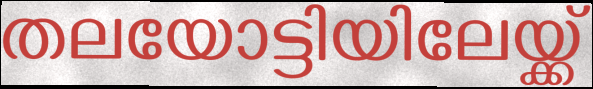
തലയോട്ടിയിലേയ്ക്ക്